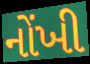
નોંખી